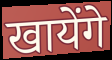
खायेंगे